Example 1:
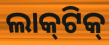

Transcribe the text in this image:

ଲାକ୍‌ଟିକ୍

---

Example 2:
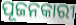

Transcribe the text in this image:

ପୂଜନକାରୀ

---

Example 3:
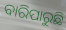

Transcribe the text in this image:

ବାରିପାରୁଛି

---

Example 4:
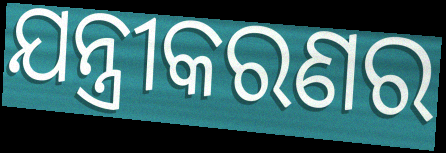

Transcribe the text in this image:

ଯନ୍ତ୍ରୀକରଣର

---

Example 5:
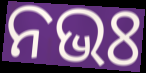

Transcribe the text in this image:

ନଭଃ